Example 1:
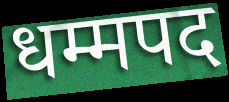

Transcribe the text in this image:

धम्मपद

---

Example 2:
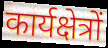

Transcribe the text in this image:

कार्यक्षेत्रों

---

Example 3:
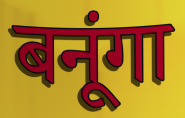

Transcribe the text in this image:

बनूंगा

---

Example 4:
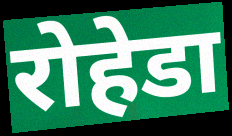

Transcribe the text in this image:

रोहेडा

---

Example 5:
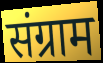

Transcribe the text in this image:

संग्राम